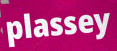
plassey